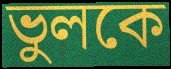
ভুলকে